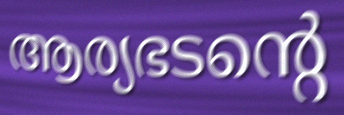
ആര്യഭടന്റെ